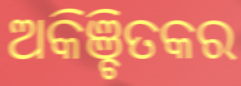
ଅକିଞ୍ଚିତକର